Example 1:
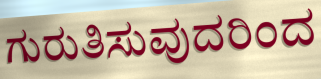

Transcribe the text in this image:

ಗುರುತಿಸುವುದರಿಂದ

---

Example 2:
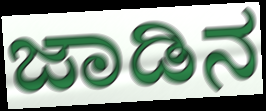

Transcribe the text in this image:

ಜಾಡಿನ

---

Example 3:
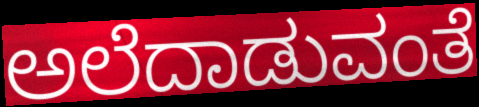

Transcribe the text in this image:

ಅಲೆದಾಡುವಂತೆ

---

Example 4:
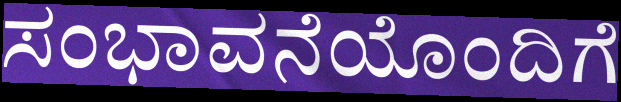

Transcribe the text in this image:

ಸಂಭಾವನೆಯೊಂದಿಗೆ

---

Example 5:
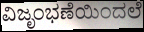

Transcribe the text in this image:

ವಿಜೃಂಭಣೆಯಿಂದಲೆ